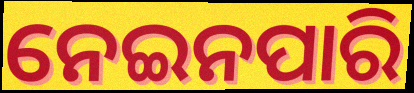
ନେଇନପାରି